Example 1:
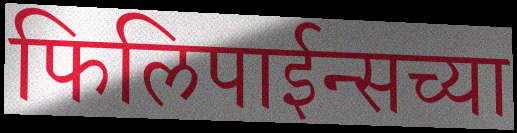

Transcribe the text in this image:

फिलिपाईन्सच्या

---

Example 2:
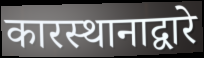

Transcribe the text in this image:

कारस्थानाद्वारे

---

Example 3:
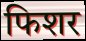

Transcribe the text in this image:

फिशर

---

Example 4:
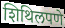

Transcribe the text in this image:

शिथिलपणे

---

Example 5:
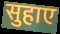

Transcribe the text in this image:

सुहाए